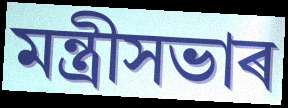
মন্ত্ৰীসভাৰ